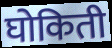
घोकिती